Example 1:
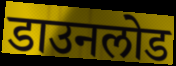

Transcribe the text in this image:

डाउनलोड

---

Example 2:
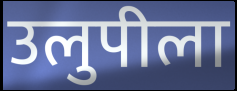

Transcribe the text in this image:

उलुपीला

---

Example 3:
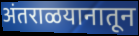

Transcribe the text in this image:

अंतराळयानातून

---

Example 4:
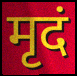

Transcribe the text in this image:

मृदं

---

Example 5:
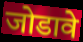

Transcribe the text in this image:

जोडावे